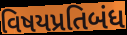
વિષયપ્રતિબંધ